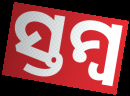
ସ୍ତମ୍ଵ